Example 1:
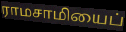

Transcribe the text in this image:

ராமசாமியைப்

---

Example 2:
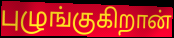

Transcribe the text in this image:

புழுங்குகிறான்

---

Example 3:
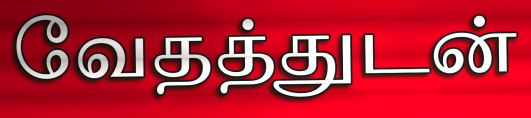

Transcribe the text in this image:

வேதத்துடன்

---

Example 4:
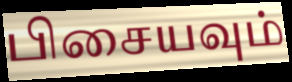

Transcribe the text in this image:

பிசையவும்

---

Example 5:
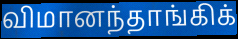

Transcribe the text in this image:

விமானந்தாங்கிக்